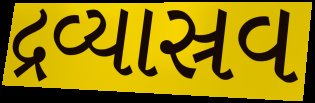
દ્રવ્યાસ્રવ